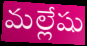
మల్లేషు